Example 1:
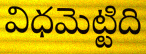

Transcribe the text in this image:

విధమెట్టిది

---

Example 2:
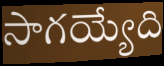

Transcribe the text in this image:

సాగయ్యేది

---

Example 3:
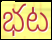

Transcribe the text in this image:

భట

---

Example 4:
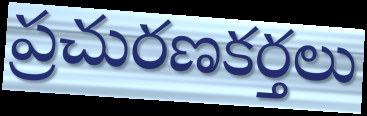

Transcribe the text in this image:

ప్రచురణకర్తలు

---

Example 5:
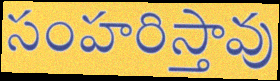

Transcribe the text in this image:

సంహరిస్తావు